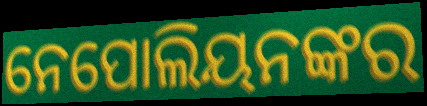
ନେପୋଲିୟନଙ୍କର